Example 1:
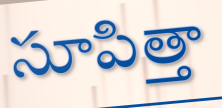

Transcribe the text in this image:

సూపిత్తా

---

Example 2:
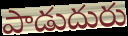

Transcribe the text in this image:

పాడుదురు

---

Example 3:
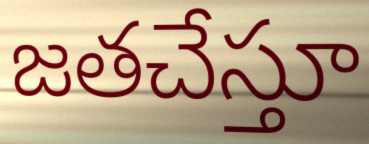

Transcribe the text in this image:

జతచేస్తూ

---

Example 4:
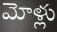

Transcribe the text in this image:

మోళ్లు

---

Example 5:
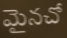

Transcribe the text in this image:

మైనచో